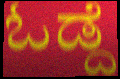
ಓಡ್ದೆ